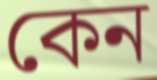
কেন